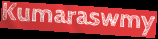
Kumaraswmy